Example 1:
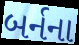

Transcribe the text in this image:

બર્નના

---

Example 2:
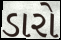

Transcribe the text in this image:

ડારો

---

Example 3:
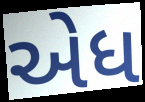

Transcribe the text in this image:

એધ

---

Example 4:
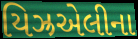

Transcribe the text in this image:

યિઝ્રએલીના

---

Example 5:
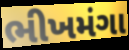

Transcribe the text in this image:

ભીખમંગા